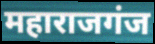
महाराजगंज